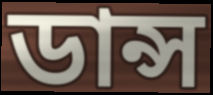
ডান্স